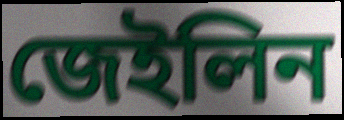
জেইলিন